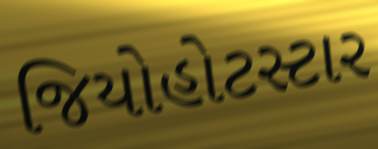
જિયોહોટસ્ટાર